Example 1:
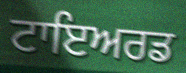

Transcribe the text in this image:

ਟਾਇਅਰਡ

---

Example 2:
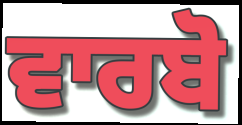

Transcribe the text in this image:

ਵਾਰਬੋ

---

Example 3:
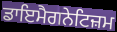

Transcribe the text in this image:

ਡਾਇਮੈਗਨੇਟਿਜ਼ਮ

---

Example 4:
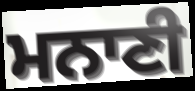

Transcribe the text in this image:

ਮਨਾਣੀ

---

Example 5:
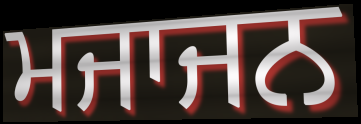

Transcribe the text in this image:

ਮਜਾਜਨ